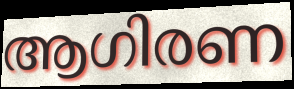
ആഗിരണ